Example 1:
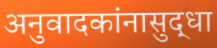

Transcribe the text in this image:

अनुवादकांनासुद्धा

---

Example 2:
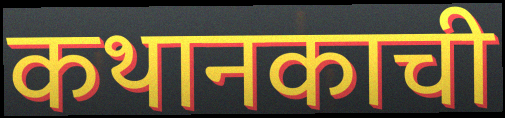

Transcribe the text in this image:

कथानकाची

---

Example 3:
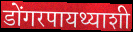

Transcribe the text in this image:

डोंगरपायथ्याशी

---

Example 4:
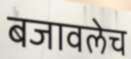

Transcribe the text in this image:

बजावलेच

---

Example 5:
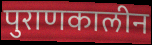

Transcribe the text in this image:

पुराणकालीन